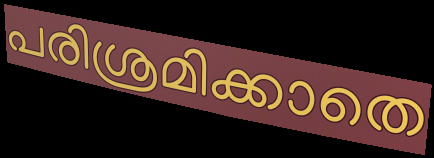
പരിശ്രമിക്കാതെ